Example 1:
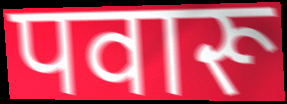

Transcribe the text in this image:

पवारू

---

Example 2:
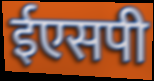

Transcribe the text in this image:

ईएसपी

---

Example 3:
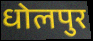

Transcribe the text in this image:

धोलपुर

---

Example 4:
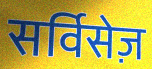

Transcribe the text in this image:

सर्विसेज़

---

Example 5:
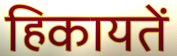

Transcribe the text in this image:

हिकायतें